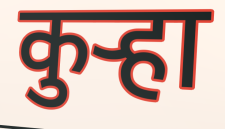
कुऱ्हा